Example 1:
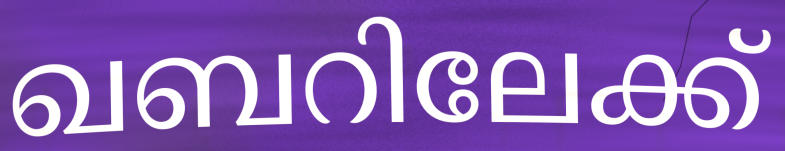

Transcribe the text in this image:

ഖബറിലേക്ക്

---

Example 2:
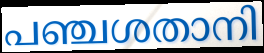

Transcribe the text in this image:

പഞ്ചശതാനി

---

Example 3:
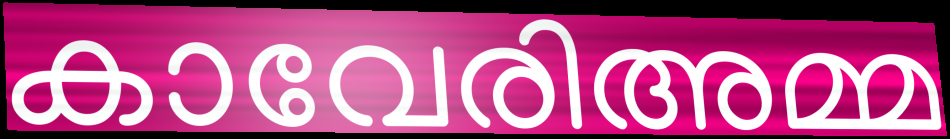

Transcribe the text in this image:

കാവേരിഅമ്മ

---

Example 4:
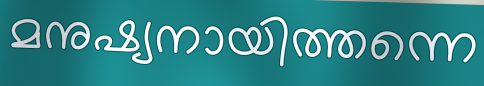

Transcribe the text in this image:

മനുഷ്യനായിത്തന്നെ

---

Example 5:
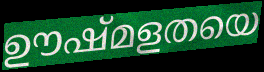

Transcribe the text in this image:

ഊഷ്മളതയെ